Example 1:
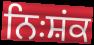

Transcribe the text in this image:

ਨਿਃਸ਼ਂਕ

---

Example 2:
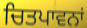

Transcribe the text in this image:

ਚਿਤਪਾਵਨਾਂ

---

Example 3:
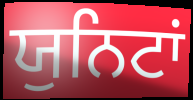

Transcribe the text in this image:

ਯੁਨਿਟਾਂ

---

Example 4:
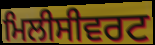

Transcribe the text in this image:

ਮਿਲੀਸੀਵਰਟ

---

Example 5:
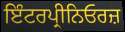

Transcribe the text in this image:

ਇੰਟਰਪ੍ਰੀਨਿਓਰਜ਼